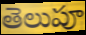
తెలుపూ